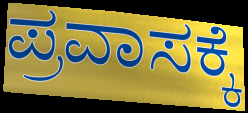
ಪ್ರವಾಸಕ್ಕೆ